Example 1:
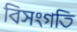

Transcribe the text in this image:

বিসংগতি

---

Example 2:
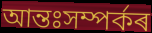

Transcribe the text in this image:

আন্তঃসম্পৰ্কৰ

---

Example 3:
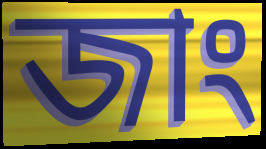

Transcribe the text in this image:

জাং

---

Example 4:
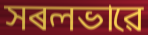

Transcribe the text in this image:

সৰলভাৱে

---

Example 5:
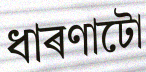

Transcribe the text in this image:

ধাৰণাটো